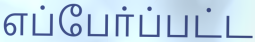
எப்பேர்ப்பட்ட